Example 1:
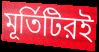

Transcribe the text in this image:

মূর্তিটিরই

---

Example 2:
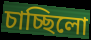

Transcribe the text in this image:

চাচ্ছিলো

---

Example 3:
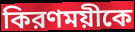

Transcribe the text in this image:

কিরণময়ীকে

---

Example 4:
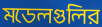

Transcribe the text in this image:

মডেলগুলির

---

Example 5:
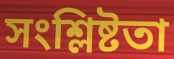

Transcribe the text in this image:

সংশ্লিষ্টতা